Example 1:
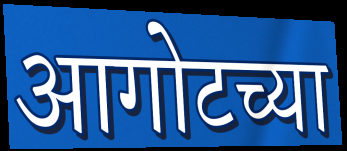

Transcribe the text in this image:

आगोटच्या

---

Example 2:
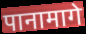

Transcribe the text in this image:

पानामागे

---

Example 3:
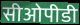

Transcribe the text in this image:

सीओपीडी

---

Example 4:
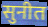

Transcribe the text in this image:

सुनीत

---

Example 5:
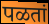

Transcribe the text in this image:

पळतां